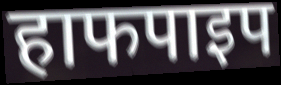
हाफपाइप